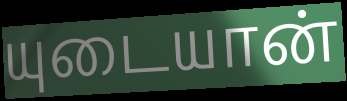
யுடையான்